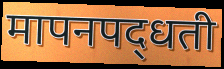
मापनपद्धती